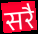
सरै